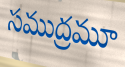
సముద్రమూ